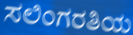
ಸಲಿಂಗರತಿಯ